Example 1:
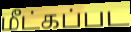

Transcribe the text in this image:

மீட்கப்பட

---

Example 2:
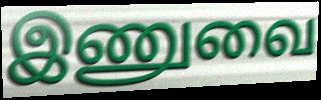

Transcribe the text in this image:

இணுவை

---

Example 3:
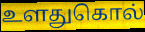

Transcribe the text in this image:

உளதுகொல்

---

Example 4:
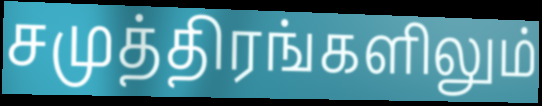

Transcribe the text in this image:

சமுத்திரங்களிலும்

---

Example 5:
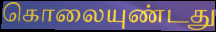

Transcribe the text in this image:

கொலையுண்டது